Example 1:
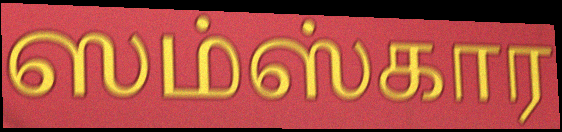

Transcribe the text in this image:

ஸம்ஸ்கார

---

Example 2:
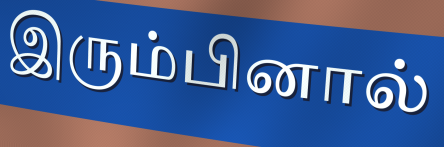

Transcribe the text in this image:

இரும்பினால்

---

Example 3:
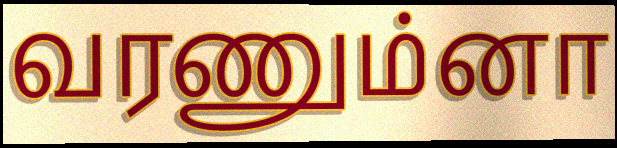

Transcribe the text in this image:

வரணும்னா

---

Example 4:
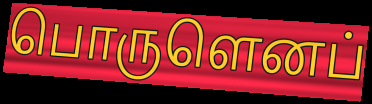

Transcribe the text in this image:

பொருளெனப்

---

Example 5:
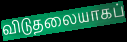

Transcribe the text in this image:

விடுதலையாகப்